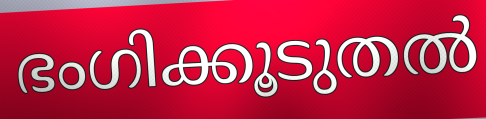
ഭംഗിക്കൂടുതൽ